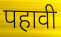
पहावी